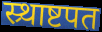
स्र्थाष्टपत